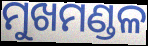
ମୁଖମଣ୍ଡଳ